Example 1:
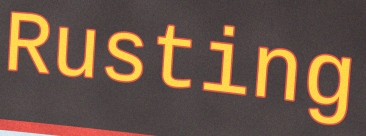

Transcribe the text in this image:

Rusting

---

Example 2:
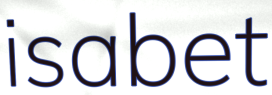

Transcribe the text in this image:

isabet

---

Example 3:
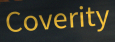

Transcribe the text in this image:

Coverity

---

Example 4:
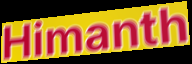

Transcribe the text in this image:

Himanth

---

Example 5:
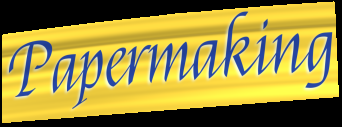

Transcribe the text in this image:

Papermaking